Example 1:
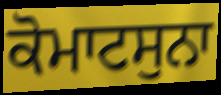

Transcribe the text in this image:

ਕੋਮਾਟਸੁਨਾ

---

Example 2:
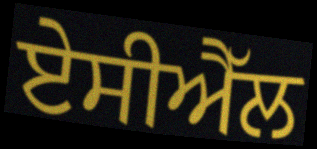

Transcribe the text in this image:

ਏਸੀਐੱਲ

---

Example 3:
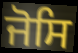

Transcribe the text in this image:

ਜੋਸਿ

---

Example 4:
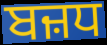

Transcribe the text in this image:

ਬਜ਼ਧ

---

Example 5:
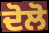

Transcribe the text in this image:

ਦੋਲੋ